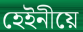
হেইনীয়ে